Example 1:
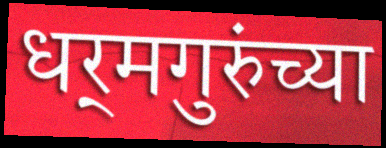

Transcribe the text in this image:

धर्मगुरुंच्या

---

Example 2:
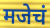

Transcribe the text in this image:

मजेचं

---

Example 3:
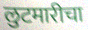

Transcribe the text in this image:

लुटमारीचा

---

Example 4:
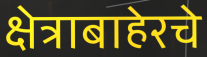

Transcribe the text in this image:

क्षेत्राबाहेरचे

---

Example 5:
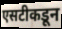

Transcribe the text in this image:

एसटीकडून